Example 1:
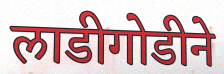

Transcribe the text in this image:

लाडीगोडीने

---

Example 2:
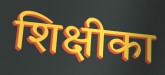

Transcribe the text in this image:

शिक्षीका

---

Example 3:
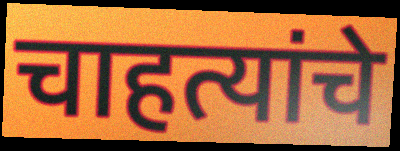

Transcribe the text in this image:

चाहत्यांचे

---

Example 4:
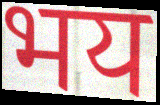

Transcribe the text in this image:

भय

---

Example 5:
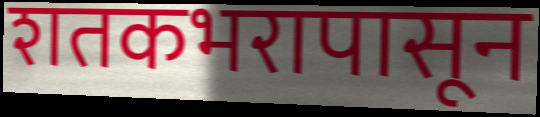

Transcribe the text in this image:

शतकभरापासून